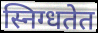
स्निग्धतेत